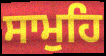
ਸਾਮੁਹਿ